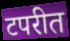
टपरीत